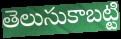
తెలుసుకాబట్టి